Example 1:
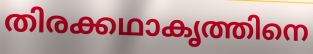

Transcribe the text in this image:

തിരക്കഥാകൃത്തിനെ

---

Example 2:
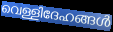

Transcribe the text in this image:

വെള്ളിദേഹങ്ങൾ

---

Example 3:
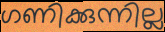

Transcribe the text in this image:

ഗണിക്കുന്നില്ല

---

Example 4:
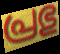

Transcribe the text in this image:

പ്രഭു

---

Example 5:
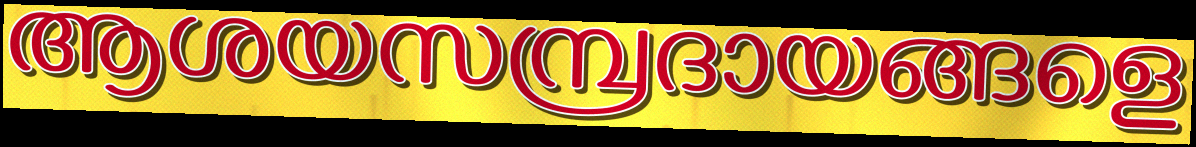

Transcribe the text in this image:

ആശയസമ്പ്രദായങ്ങളെ